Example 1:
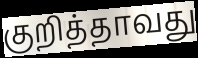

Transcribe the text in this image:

குறித்தாவது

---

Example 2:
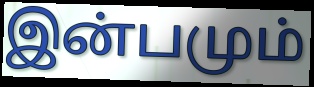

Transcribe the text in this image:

இன்பமும்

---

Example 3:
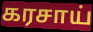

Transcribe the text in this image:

கரசாய்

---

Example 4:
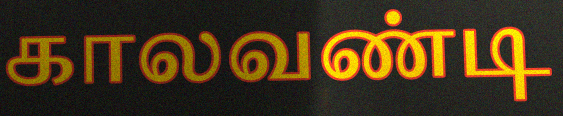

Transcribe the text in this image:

காலவண்டி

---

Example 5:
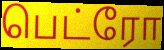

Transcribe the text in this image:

பெட்ரோ